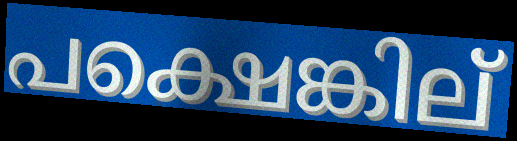
പക്ഷെങ്കില്